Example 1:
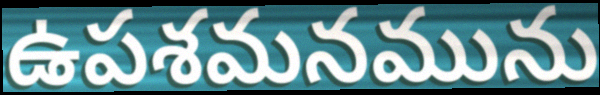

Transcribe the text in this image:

ఉపశమనమును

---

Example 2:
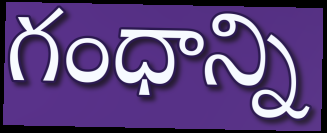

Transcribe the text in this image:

గంధాన్ని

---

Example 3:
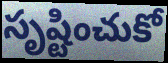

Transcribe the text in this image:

సృష్టించుకో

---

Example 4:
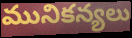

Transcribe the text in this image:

మునికన్యలు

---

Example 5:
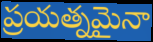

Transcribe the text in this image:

ప్రయత్నమైనా